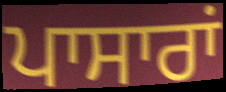
ਪਾਸਾਰਾਂ